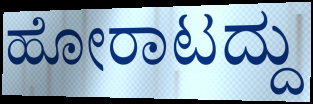
ಹೋರಾಟದ್ದು